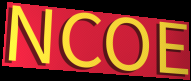
NCOE